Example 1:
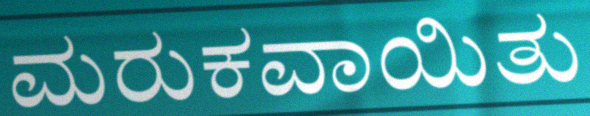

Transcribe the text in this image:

ಮರುಕವಾಯಿತು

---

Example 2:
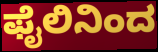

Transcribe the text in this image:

ಫೈಲಿನಿಂದ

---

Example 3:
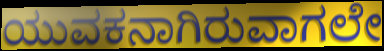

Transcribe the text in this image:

ಯುವಕನಾಗಿರುವಾಗಲೇ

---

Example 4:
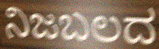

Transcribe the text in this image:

ನಿಜಬಲದ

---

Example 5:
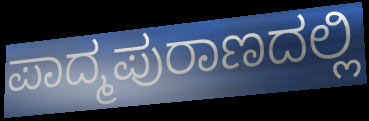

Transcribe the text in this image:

ಪಾದ್ಮಪುರಾಣದಲ್ಲಿ